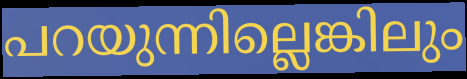
പറയുന്നില്ലെങ്കിലും